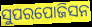
ସୁପରପୋଜିସନ